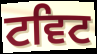
ਟਵਿਟ